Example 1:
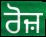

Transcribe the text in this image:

ਰੋਜ਼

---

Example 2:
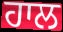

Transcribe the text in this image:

ਹਾਲ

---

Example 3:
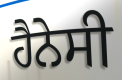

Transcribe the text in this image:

ਹੈਨੇਸੀ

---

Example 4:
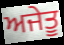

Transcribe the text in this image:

ਅਜੇਤੂ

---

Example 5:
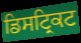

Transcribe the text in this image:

ਡਿਸਟ੍ਰਿਕਟ